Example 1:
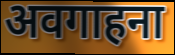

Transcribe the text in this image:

अवगाहना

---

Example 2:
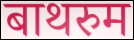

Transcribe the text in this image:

बाथरुम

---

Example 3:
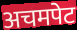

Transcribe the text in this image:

अचमपेट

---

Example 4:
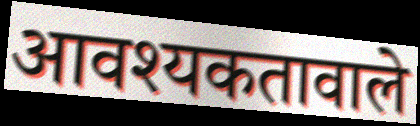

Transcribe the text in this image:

आवश्यकतावाले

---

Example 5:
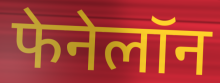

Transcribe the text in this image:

फेनेलॉन